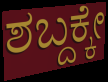
ಶಬ್ದಕ್ಕೇ